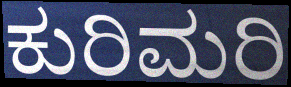
ಕುರಿಮರಿ